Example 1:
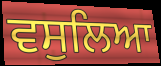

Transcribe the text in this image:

ਵਸੁਲਿਆ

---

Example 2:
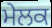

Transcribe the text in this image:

ਮੇਲਕ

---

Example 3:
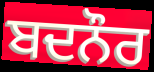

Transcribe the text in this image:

ਬਦਨੌਰ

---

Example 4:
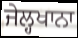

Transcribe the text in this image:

ਜੇਲ੍ਹਖਾਨਾ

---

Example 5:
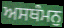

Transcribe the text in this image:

ਅਸਥੰਮਨੁ